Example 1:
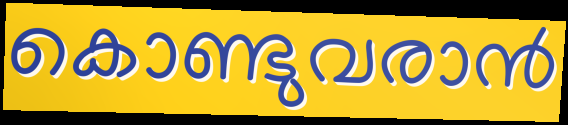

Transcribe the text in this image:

കൊണ്ടുവരാൻ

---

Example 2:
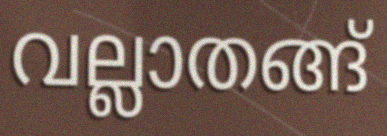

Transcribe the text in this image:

വല്ലാതങ്ങ്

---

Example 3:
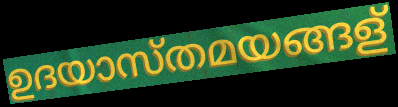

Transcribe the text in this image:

ഉദയാസ്തമയങ്ങള്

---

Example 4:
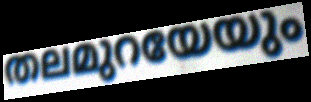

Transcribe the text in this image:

തലമുറയേയും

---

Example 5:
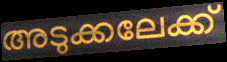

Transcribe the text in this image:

അടുക്കലേക്ക്